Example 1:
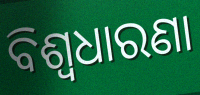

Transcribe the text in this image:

ବିଶ୍ୱଧାରଣା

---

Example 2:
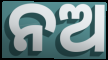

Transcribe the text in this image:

ନଅ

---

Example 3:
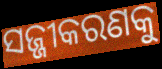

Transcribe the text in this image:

ସଜ୍ଜୀକରଣକୁ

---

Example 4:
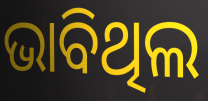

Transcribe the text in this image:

ଭାବିଥିଲ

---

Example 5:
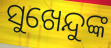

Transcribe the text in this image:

ସୁଖେନ୍ଦୁଙ୍କ